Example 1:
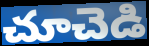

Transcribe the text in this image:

చూచెడి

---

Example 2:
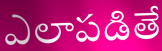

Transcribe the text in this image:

ఎలాపడితే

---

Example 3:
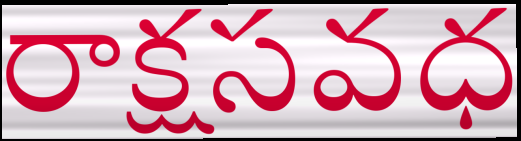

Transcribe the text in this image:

రాక్షసవధ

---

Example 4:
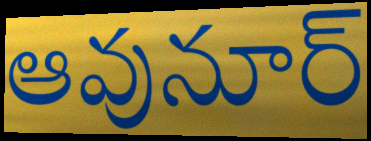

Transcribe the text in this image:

ఆవునూర్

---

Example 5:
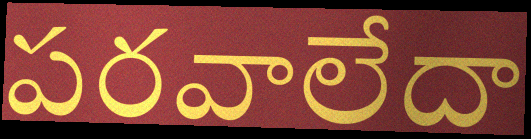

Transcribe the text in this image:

పరవాలేదా